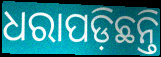
ଧରାପଡ଼ିଛନ୍ତି